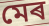
মেৰ